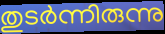
തുടർന്നിരുന്നു